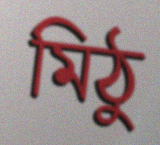
মিঠু